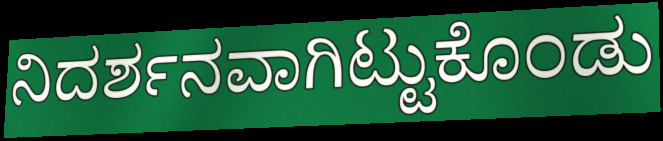
ನಿದರ್ಶನವಾಗಿಟ್ಟುಕೊಂಡು